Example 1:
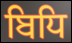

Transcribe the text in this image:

ਬਿਧਿ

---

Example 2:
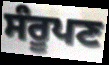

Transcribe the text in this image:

ਸੰਰੂਪਣ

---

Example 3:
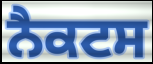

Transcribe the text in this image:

ਨੈਕਟਸ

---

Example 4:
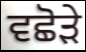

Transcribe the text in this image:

ਵਛੋੜੇ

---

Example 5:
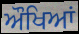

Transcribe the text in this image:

ਔਖਿਆਂ